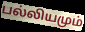
பல்லியமும்